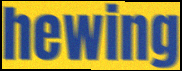
hewing